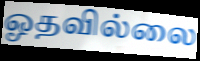
ஓதவில்லை